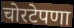
चोरटेपणा